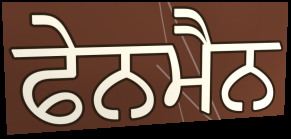
ਫੇਨਮੈਨ